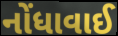
નોંધાવાઈ